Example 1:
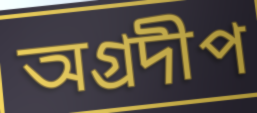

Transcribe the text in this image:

অগ্রদীপ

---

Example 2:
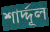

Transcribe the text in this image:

শার্দ্দূল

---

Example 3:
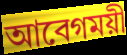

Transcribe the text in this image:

আবেগময়ী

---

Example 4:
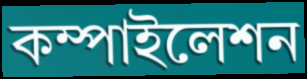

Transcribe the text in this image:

কম্পাইলেশন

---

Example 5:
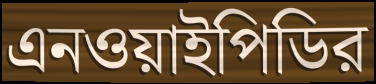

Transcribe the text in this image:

এনওয়াইপিডির